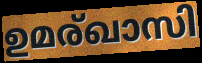
ഉമര്ഖാസി